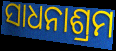
ସାଧନାଶ୍ରମ